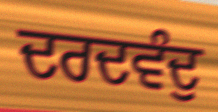
ਦਰਦਵੰਦੁ